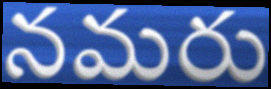
నమరు